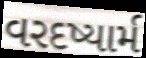
વરદષ્યાર્મ